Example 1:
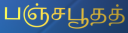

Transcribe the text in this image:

பஞ்சபூதத்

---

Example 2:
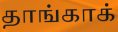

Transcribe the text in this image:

தாங்காக்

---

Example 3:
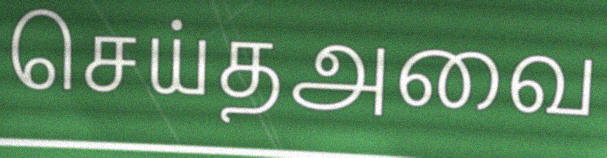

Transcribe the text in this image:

செய்தஅவை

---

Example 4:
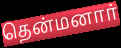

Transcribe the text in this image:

தென்மனார்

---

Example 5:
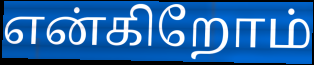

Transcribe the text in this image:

என்கிறோம்